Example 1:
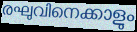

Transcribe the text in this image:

രഘുവിനെക്കാളും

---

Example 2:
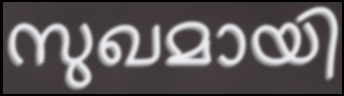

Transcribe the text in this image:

സുഖമായി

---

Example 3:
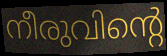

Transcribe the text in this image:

നീരുവിന്റെ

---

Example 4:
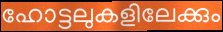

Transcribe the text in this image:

ഹോട്ടലുകളിലേക്കും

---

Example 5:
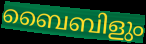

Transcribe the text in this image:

ബൈബിളും